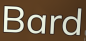
Bard